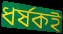
ধর্ষকই